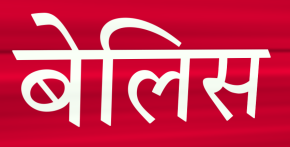
बेलिस